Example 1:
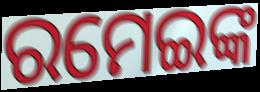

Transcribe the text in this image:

ରମେଇଙ୍କ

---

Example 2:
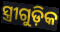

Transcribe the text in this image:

ସ୍ତ୍ରୀଗୁଡ଼ିକ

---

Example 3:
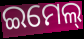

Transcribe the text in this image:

ଇମେଲ୍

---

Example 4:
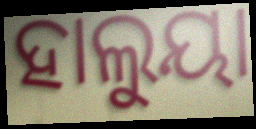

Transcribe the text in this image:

ହାଲୁୟା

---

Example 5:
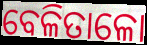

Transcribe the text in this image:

ବେଳିତାଳୋ